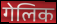
गेलिक